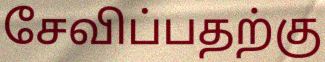
சேவிப்பதற்கு